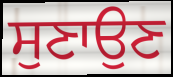
ਸੁਣਾਉਣ